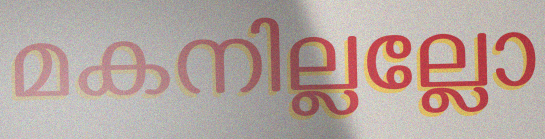
മകനില്ലല്ലോ